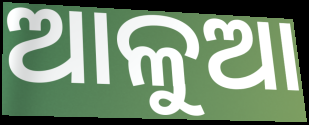
ଆଳୁଆ